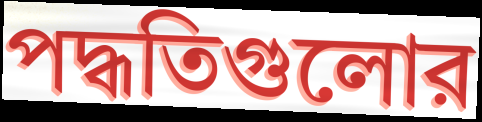
পদ্ধতিগুলোর